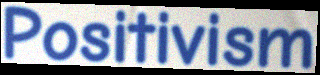
Positivism